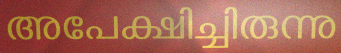
അപേക്ഷിച്ചിരുന്നു